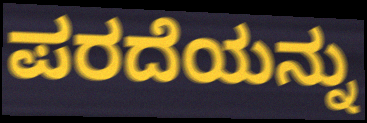
ಪರದೆಯನ್ನು